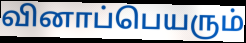
வினாப்பெயரும்